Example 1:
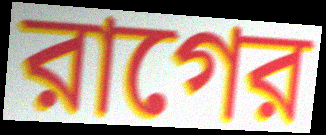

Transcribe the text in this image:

রাগের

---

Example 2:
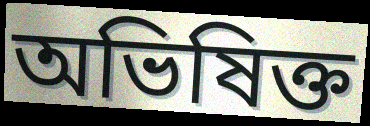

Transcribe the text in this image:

অভিষিক্ত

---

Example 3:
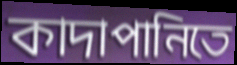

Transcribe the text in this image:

কাদাপানিতে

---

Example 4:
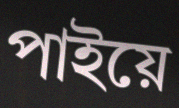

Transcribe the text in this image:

পাইয়ে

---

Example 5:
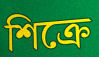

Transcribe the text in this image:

শিক্রে